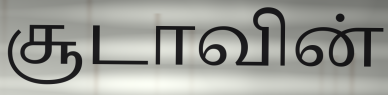
சூடாவின்